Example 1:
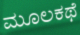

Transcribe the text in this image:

ಮೂಲಕಥೆ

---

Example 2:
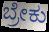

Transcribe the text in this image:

ಬ್ರೇಕು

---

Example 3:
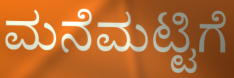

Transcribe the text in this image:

ಮನೆಮಟ್ಟಿಗೆ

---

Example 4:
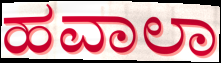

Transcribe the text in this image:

ಹವಾಲಾ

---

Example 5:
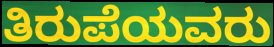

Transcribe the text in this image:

ತಿರುಪೆಯವರು